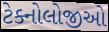
ટેક્નોલોજીઓ